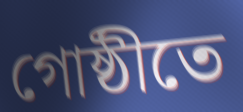
গোষ্ঠীতে